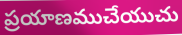
ప్రయాణముచేయుచు